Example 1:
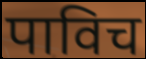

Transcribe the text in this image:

पाविच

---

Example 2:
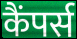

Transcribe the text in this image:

कैंपर्स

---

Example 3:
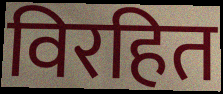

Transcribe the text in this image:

विरहित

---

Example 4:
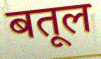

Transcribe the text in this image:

बतूल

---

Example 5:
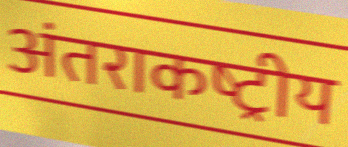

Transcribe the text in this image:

अंतराकष्ट्रीय